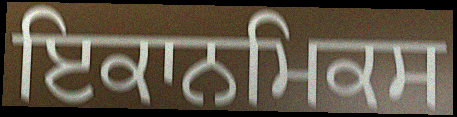
ਇਕਾਨਮਿਕਸ